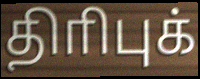
திரிபுக்